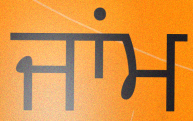
ਜਾਂਮ